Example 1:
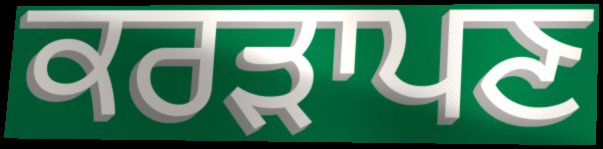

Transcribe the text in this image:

ਕਰੜਾਪਣ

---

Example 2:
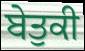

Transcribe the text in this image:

ਬੇਤੁਕੀ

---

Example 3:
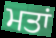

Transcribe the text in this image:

ਮਤਾਂ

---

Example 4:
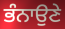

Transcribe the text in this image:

ਭੰਨਾਉਣੇ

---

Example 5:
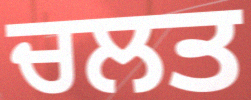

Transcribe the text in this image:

ਚਲਤ